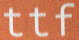
ttf